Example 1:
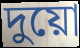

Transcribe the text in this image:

দুয়ো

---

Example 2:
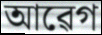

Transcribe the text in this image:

আৱেগ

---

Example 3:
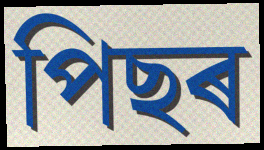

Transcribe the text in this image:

পিছৰ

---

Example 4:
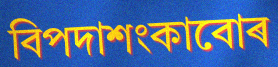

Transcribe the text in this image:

বিপদাশংকাবোৰ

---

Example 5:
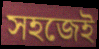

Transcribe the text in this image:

সহজেই